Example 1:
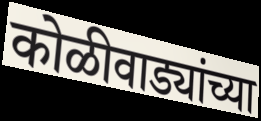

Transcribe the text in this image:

कोळीवाड्यांच्या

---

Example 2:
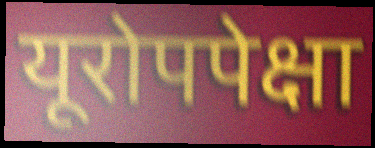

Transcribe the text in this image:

यूरोपपेक्षा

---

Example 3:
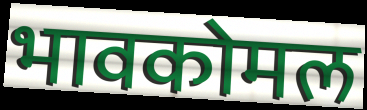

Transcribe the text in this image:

भावकोमल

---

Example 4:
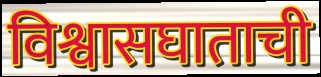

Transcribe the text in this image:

विश्वासघाताची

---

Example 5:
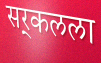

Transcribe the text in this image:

सर्कलला